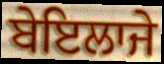
ਬੇਇਲਾਜੇ